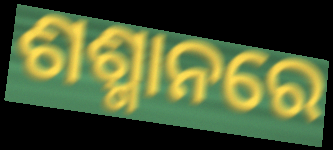
ଶଶ୍ମାନରେ